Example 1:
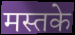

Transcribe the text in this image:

मस्तके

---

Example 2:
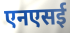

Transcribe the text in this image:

एनएसई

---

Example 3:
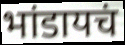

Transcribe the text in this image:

भांडायचं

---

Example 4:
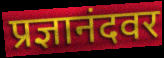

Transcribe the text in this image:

प्रज्ञानंदवर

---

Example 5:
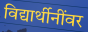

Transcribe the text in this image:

विद्यार्थीनींवर